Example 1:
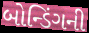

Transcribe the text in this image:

બોન્ડિંગની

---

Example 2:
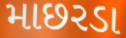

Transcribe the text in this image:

માછરડા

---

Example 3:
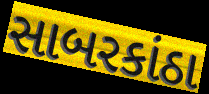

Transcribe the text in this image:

સાબરકાંઠા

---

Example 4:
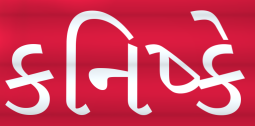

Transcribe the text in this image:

કનિષ્કે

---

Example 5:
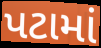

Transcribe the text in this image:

પટામાં